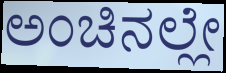
ಅಂಚಿನಲ್ಲೇ